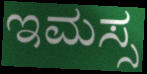
ಇಮಸ್ಸ